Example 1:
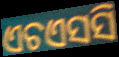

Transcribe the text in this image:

ଏଚଏସସି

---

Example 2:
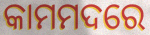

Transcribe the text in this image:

କାମମଦରେ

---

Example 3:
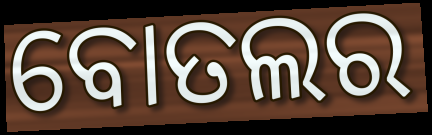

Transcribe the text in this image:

ବୋତଲର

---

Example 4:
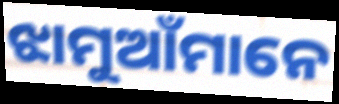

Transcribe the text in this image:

ଝାମୁଆଁମାନେ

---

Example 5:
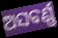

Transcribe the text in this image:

ଅସବର୍ଣ୍ଣ